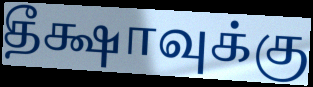
தீக்ஷாவுக்கு